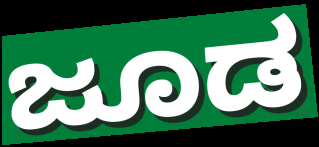
ಜೂಡ